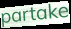
partake